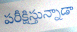
పరీక్షిస్తున్నాడా